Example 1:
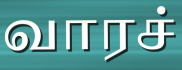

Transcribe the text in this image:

வாரச்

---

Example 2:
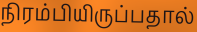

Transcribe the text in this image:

நிரம்பியிருப்பதால்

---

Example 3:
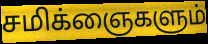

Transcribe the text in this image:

சமிக்ஞைகளும்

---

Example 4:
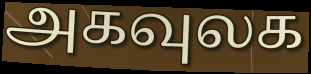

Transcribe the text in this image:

அகவுலக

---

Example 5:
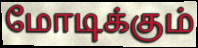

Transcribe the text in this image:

மோடிக்கும்